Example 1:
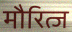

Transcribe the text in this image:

मौरित्ज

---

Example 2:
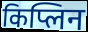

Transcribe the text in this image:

किप्लिन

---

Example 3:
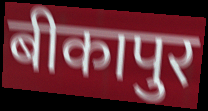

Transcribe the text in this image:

बीकापुर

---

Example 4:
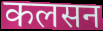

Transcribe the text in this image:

कलसन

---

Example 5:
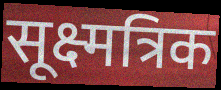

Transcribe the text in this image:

सूक्ष्मत्रिक